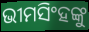
ଭୀମସିଂହଙ୍କୁ